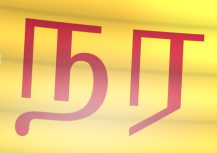
நர